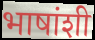
भाषांशी